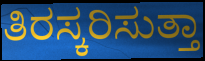
ತಿರಸ್ಕರಿಸುತ್ತಾ